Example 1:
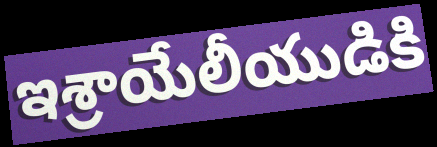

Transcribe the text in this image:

ఇశ్రాయేలీయుడికి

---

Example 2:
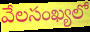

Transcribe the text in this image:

వేలసంఖ్యలో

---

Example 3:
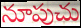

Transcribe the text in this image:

నూపుచు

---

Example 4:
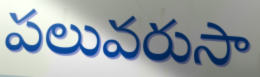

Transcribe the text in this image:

పలువరుసా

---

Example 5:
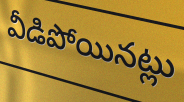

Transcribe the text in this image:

వీడిపోయినట్లు